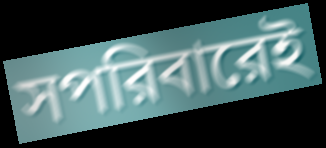
সপরিবারেই